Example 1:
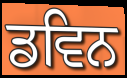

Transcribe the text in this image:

ਡਵਿਨ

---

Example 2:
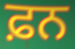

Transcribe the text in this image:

ਫ਼ਨ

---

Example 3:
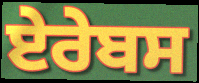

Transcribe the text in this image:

ਏਰੇਬਸ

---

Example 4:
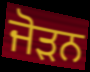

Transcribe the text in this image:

ਜੋੜਨ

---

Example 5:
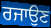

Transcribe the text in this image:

ਰਜਾਉਣ